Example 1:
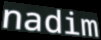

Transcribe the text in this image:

nadim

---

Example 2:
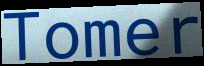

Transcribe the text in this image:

Tomer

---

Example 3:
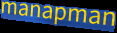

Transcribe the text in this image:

manapman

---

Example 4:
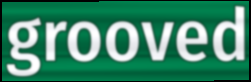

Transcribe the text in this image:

grooved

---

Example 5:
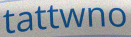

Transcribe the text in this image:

tattwno